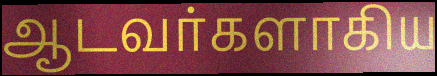
ஆடவர்களாகிய